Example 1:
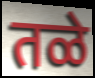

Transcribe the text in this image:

तळे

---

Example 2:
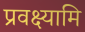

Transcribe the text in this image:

प्रवक्ष्यामि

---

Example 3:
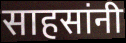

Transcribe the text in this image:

साहसांनी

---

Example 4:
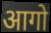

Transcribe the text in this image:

आगो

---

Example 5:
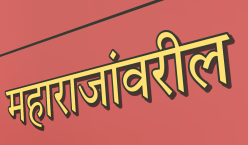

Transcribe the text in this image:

महाराजांवरील